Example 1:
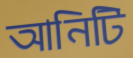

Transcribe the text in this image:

আনিটি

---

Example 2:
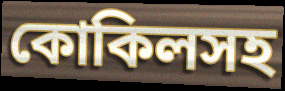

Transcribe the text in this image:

কোকিলসহ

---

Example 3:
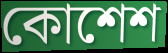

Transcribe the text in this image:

কোশেশ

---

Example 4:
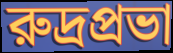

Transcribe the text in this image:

রুদ্রপ্রভা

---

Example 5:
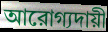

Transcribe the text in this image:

আরোগ্যদায়ী